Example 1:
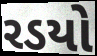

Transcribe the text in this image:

રડયો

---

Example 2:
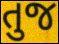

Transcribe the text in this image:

તુજ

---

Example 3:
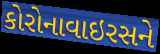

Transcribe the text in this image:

કોરોનાવાઇરસને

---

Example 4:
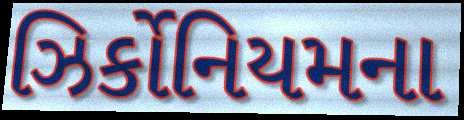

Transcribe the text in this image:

ઝિર્કોનિયમના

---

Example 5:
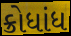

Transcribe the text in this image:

ક્રોધાંધ